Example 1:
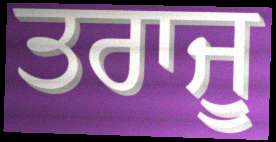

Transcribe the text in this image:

ਤਰਾਜੂ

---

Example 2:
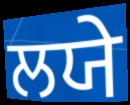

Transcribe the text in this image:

ਲਯੇ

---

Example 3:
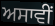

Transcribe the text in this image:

ਅਸਾਵੀਂ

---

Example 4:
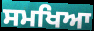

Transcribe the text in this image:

ਸਮਖਿਆ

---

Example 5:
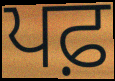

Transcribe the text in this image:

ਪਫ਼